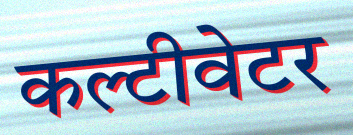
कल्टीवेटर